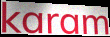
karam